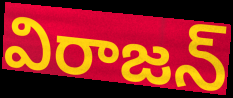
విరాజన్